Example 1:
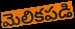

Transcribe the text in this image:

మెలికపడి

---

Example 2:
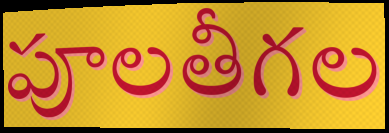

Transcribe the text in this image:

పూలతీగల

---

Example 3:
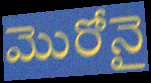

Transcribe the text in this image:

మొరోనై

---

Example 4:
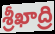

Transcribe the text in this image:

శ్రీఖాద్రి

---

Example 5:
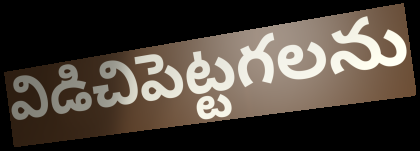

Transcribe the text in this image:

విడిచిపెట్టగలను